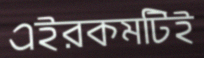
এইরকমটিই